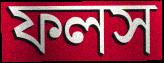
ফলস